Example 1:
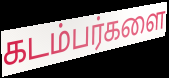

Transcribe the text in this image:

கடம்பர்களை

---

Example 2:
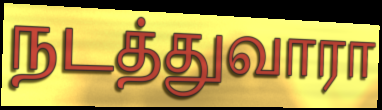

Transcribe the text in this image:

நடத்துவாரா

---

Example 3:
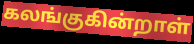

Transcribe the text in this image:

கலங்குகின்றாள்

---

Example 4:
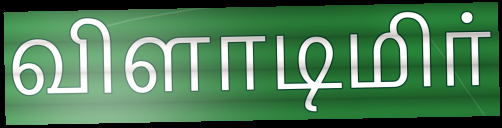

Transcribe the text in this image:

விளாடிமிர்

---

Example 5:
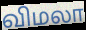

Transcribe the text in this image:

விமலா